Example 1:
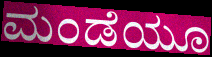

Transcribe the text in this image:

ಮಂಡೆಯೂ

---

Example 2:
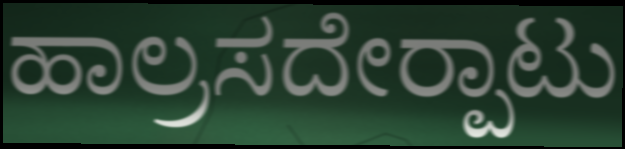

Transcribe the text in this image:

ಹಾಲ್ರಸದೇರ‍್ಪಾಟು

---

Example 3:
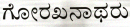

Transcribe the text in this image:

ಗೋರಖನಾಥರು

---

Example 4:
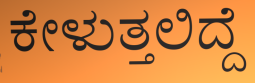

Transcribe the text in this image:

ಕೇಳುತ್ತಲಿದ್ದೆ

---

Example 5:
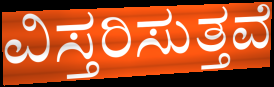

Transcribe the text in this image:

ವಿಸ್ತರಿಸುತ್ತವೆ